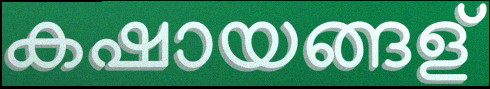
കഷായങ്ങള്